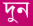
দুন